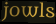
jowls